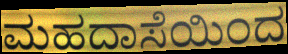
ಮಹದಾಸೆಯಿಂದ